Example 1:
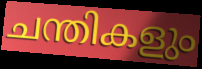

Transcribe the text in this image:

ചന്തികളും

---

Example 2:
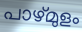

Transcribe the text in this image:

പാഴ്മുളം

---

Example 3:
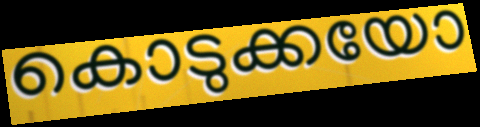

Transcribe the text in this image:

കൊടുക്കയോ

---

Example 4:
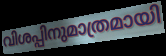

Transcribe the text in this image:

വിശപ്പിനുമാത്രമായി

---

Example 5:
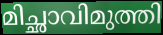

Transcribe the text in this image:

മിച്ഛാവിമുത്തി